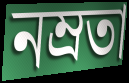
নম্ৰতা